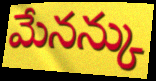
మేనన్కు